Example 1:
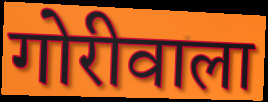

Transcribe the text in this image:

गोरीवाला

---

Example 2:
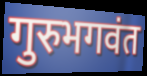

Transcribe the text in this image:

गुरुभगवंत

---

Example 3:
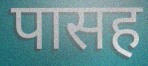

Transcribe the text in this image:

पासह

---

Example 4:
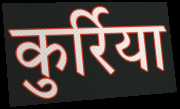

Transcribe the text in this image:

कुर्रिया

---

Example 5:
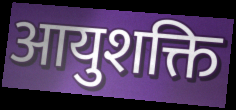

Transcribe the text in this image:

आयुशक्ति